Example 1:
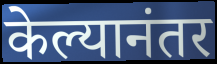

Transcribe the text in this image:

केल्यानंतर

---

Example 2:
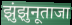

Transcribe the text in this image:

झुंझुनूताजा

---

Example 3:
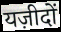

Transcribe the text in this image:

यज़ीदों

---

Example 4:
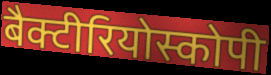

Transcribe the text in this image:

बैक्टीरियोस्कोपी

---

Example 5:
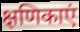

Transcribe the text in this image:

क्षणिकाएं